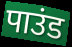
पाउंड